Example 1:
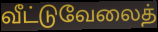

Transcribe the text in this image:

வீட்டுவேலைத்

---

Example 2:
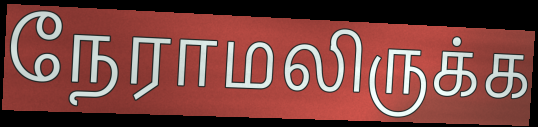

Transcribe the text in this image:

நேராமலிருக்க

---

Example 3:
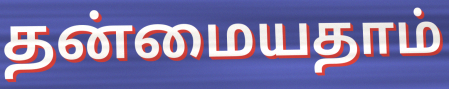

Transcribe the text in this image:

தன்மையதாம்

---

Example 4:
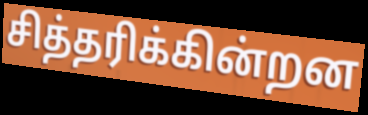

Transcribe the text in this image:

சித்தரிக்கின்றன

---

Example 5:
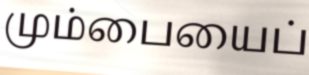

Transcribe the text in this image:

மும்பையைப்